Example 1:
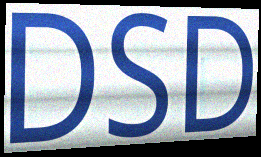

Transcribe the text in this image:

DSD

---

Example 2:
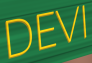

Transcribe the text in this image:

DEVI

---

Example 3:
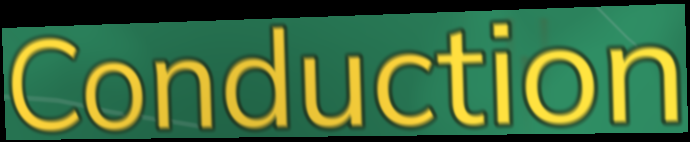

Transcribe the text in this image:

Conduction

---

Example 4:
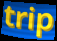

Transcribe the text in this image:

trip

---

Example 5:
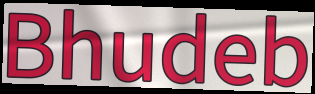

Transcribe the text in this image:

Bhudeb